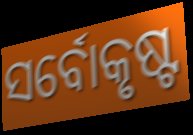
ସର୍ବୋକୃଷ୍ଟ